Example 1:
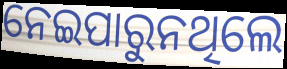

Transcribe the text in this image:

ନେଇପାରୁନଥିଲେ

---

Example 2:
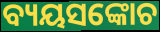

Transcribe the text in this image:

ବ୍ୟୟସଙ୍କୋଚ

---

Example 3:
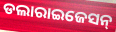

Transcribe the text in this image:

ଡଲାରାଇଜେସନ୍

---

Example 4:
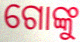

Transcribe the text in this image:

ଗୋଙ୍କୁ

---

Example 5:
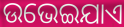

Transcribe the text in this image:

ଉଭେଇଯାଏ